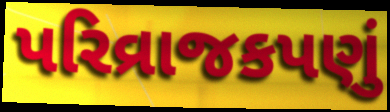
પરિવ્રાજકપણું